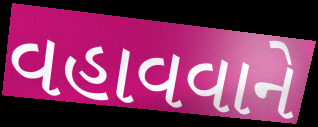
વહાવવાને